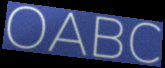
OABC